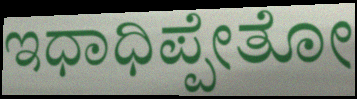
ಇಧಾಧಿಪ್ಪೇತೋ